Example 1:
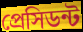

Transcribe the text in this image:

প্রেসিডন্ট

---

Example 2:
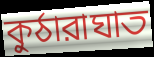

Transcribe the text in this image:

কুঠারাঘাত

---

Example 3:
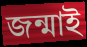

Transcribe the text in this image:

জন্মাই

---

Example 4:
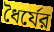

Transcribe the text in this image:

ধৈর্যের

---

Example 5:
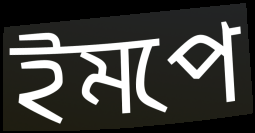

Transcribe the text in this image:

ইমপে